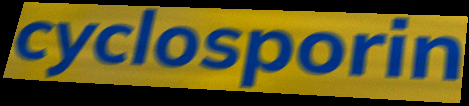
cyclosporin